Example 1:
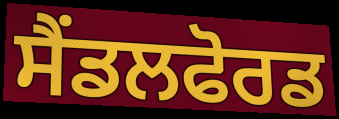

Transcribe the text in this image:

ਸੈਂਡਲਫੋਰਡ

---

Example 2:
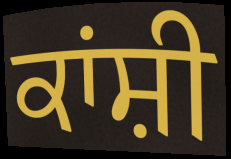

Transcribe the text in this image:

ਕਾਂਸ਼ੀ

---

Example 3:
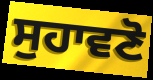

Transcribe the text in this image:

ਸੁਹਾਵਣੋ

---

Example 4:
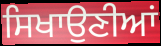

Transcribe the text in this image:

ਸਿਖਾਉਣੀਆਂ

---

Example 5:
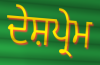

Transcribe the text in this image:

ਦੇਸ਼ਪ੍ਰੇਮ